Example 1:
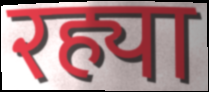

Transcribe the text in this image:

रह्या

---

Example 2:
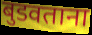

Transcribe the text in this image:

बुडवताना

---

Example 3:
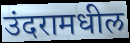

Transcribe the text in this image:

उंदरामधील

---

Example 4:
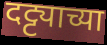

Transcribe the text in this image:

दट्ट्याच्या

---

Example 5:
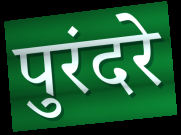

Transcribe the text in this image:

पुरंदरे